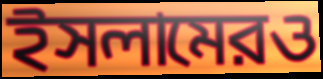
ইসলামেরও